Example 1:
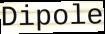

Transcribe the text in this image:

Dipole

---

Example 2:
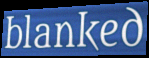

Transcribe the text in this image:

blanked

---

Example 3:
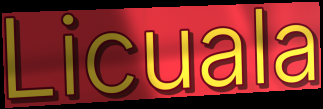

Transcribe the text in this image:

Licuala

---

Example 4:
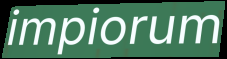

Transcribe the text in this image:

impiorum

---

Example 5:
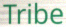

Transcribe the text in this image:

Tribe